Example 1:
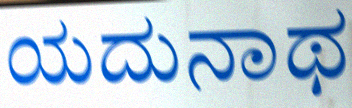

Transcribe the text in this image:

ಯದುನಾಥ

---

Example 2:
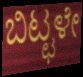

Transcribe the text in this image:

ಬಿಟ್ಟಳೇ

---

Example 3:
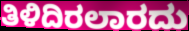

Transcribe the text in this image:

ತಿಳಿದಿರಲಾರದು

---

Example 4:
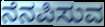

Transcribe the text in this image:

ನೆನಪಿಸುವ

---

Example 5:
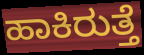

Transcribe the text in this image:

ಹಾಕಿರುತ್ತೆ